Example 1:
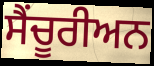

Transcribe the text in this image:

ਸੈਂਚੂਰੀਅਨ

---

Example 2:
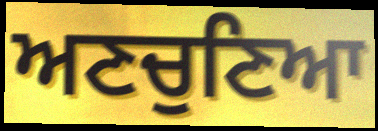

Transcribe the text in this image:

ਅਣਚੁਣਿਆ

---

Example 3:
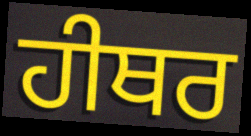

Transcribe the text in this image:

ਹੀਥਰ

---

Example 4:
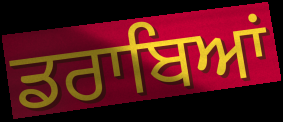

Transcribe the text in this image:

ਡਰਾਬਿਆਂ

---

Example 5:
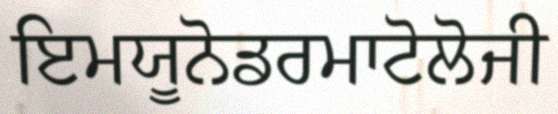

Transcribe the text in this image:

ਇਮਯੂਨੋਡਰਮਾਟੋਲੋਜੀ